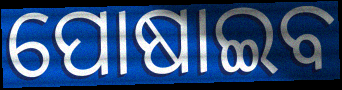
ପୋଷାଇବ